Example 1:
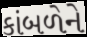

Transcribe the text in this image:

કાંબળેને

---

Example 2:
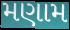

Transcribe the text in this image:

મણામ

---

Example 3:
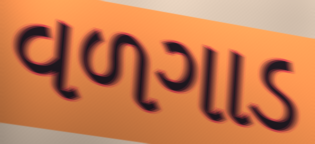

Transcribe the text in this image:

વળગાડ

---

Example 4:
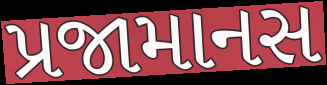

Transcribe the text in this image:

પ્રજામાનસ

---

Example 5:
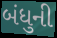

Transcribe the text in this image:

બંધુની